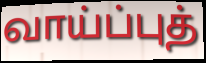
வாய்ப்புத்